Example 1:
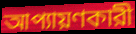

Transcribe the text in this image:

আপ্যায়ণকারী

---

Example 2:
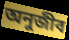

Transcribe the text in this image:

অনুজীব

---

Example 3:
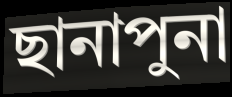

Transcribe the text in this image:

ছানাপুনা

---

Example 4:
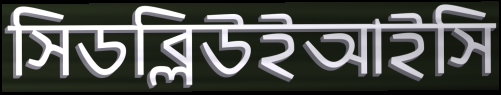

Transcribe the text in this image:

সিডব্লিউইআইসি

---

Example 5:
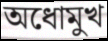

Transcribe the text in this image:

অধোমুখ